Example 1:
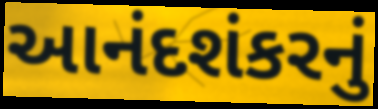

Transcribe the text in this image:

આનંદશંકરનું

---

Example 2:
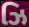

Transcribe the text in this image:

ઝિ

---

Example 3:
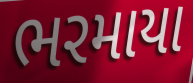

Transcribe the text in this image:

ભરમાયા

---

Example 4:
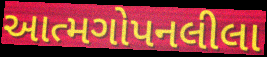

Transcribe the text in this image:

આત્મગોપનલીલા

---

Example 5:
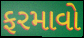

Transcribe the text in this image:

ફરમાવો